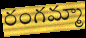
రంగమ్మా